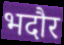
भदौर